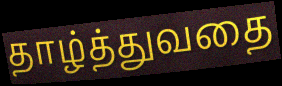
தாழ்த்துவதை